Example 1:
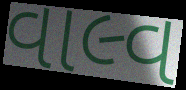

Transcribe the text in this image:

વાલ્વ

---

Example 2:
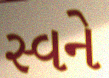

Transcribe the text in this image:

સ્વને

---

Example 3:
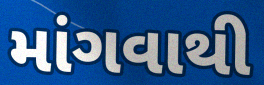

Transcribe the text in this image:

માંગવાથી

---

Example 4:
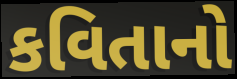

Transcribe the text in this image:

કવિતાનો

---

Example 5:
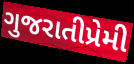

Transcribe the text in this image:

ગુજરાતીપ્રેમી